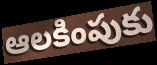
ఆలకింపుకు